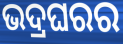
ଭଦ୍ରଘରର